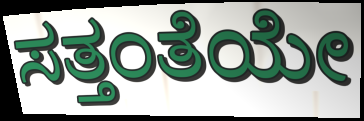
ಸತ್ತಂತೆಯೇ